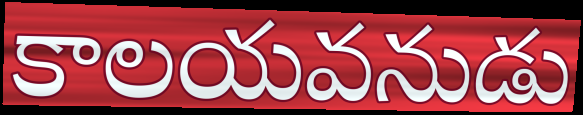
కాలయవనుడు